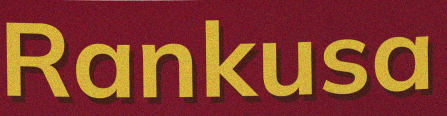
Rankusa